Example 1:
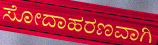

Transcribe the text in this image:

ಸೋದಾಹರಣವಾಗಿ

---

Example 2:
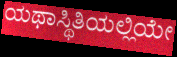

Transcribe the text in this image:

ಯಥಾಸ್ಥಿತಿಯಲ್ಲಿಯೇ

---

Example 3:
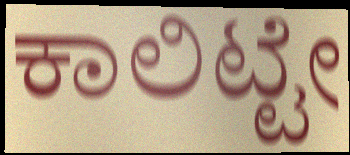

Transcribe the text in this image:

ಕಾಲಿಟ್ಟೇ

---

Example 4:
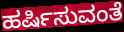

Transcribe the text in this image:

ಹರ್ಷಿಸುವಂತೆ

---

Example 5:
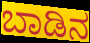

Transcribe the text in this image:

ಬಾಡಿನ